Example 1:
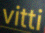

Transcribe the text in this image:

vitti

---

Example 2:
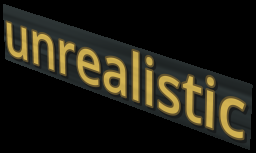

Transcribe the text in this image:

unrealistic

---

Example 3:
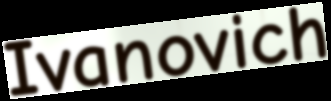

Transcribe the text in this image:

Ivanovich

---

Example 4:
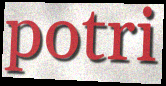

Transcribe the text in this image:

potri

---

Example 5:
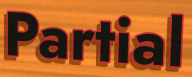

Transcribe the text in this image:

Partial